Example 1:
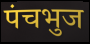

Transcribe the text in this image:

पंचभुज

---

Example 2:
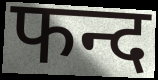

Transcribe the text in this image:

फन्द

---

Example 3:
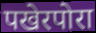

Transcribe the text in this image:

पखेरपोरा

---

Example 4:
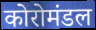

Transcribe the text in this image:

कोरोमंडल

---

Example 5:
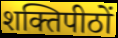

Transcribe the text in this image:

शक्तिपीठों